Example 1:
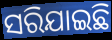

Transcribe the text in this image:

ସରିଯାଇଛି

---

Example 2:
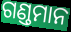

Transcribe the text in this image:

ଗଣ୍ଡମାନ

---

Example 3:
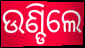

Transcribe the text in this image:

ଉଣ୍ଡିଲେ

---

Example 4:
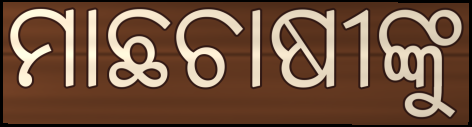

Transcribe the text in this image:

ମାଛଚାଷୀଙ୍କୁ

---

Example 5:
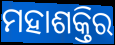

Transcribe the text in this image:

ମହାଶକ୍ତିର